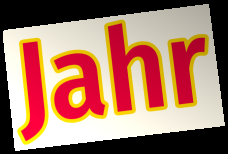
Jahr